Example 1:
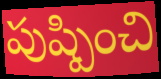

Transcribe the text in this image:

పుష్పించి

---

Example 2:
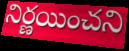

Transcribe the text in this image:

నిర్ణయించని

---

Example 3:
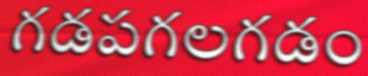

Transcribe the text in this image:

గడపగలగడం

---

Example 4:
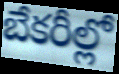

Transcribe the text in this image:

బేకరీల్లో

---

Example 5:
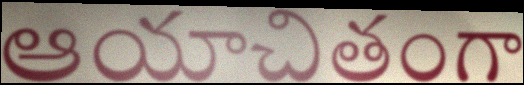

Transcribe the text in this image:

ఆయాచితంగా